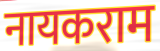
नायकराम